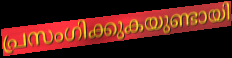
പ്രസംഗിക്കുകയുണ്ടായി